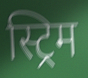
स्ट्रिम